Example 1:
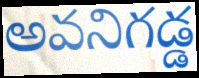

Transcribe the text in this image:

అవనిగడ్డ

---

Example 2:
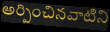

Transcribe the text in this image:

అర్పించినవాటిని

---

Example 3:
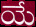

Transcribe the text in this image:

యే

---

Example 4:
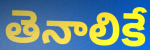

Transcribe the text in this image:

తెనాలికే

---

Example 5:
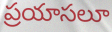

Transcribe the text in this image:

ప్రయాసలూ